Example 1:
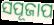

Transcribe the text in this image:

ସପୂଜାପ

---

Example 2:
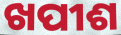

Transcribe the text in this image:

ଖପୀଶ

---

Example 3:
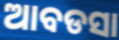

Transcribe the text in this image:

ଆବଡସା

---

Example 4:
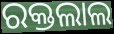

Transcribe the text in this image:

ରକ୍ତଲାଲ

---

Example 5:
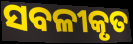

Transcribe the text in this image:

ସବଳୀକୃତ